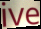
ive